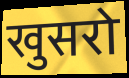
खुसरो